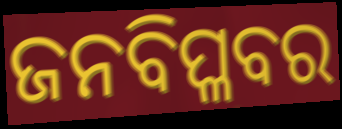
ଜନବିପ୍ଳବର